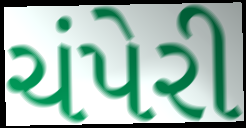
ચંપેરી